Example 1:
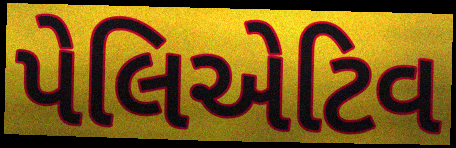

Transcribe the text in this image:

પેલિએટિવ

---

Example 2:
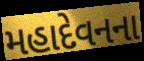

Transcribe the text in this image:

મહાદેવનના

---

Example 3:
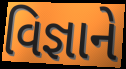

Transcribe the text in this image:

વિજ્ઞાને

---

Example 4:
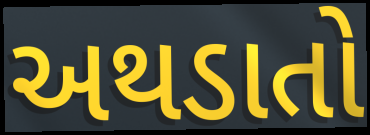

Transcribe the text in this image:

અથડાતો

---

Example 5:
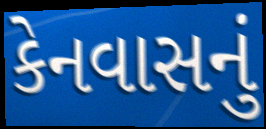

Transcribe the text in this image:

કેનવાસનું